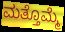
ಮತ್ತೊಮ್ಮೆ